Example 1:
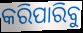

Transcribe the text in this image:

କରିପାରିବୁ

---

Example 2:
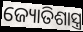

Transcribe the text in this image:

ଜ୍ୟୋତିଶାସ୍ତ୍ର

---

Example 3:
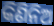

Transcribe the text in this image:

କିଣିନିଅ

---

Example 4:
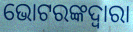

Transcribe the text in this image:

ଭୋଟରଙ୍କଦ୍ଵାରା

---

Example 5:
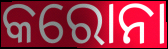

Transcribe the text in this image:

କରୋନା